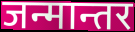
जन्मान्तर